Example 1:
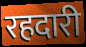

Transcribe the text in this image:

रहदारी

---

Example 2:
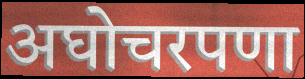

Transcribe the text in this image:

अघोचरपणा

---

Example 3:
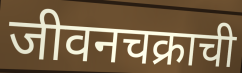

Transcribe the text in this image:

जीवनचक्राची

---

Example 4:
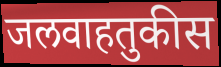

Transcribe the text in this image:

जलवाहतुकीस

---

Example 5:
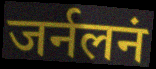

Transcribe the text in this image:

जर्नलनं